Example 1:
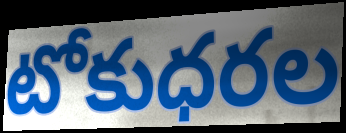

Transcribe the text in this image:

టోకుధరల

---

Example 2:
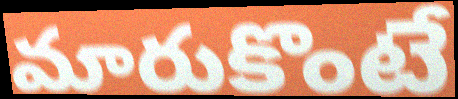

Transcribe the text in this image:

మారుకొంటే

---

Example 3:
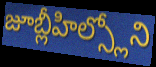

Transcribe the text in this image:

జూబ్లీహిల్స్లోని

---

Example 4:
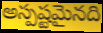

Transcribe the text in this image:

అస్పష్టమైనది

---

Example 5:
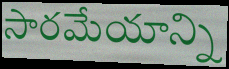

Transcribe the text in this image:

సారమేయాన్ని